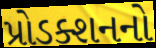
પ્રોડક્શનનો